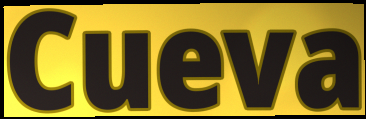
Cueva